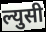
ल्युसी